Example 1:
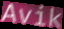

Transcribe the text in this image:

Avik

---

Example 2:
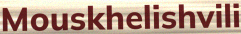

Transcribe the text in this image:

Mouskhelishvili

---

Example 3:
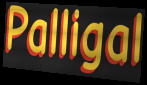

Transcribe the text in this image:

Palligal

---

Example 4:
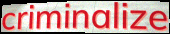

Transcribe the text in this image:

criminalize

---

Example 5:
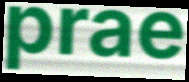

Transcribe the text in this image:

prae